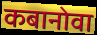
कबानोवा